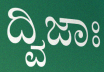
ದ್ವಿಜಾಃ